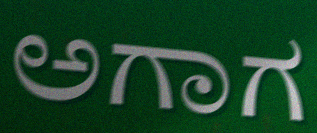
ಅಗಾಗ